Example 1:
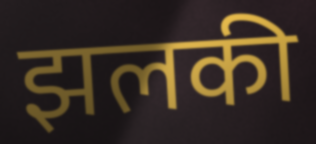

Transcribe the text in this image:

झलकी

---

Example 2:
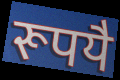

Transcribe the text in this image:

रूपयै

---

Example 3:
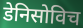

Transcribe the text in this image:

डेनिसोविच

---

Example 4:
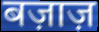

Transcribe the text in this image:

बज़ाज़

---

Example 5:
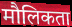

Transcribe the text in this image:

मौलिकता